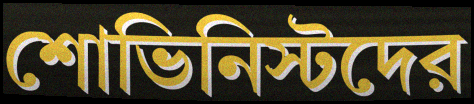
শোভিনিস্টদের